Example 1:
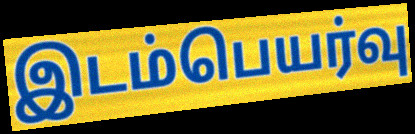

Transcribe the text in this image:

இடம்பெயர்வு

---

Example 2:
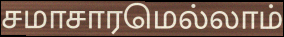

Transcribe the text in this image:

சமாசாரமெல்லாம்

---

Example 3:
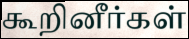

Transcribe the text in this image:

கூறினீர்கள்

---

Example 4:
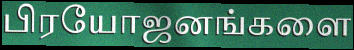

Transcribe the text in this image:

பிரயோஜனங்களை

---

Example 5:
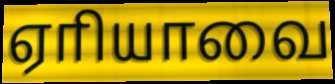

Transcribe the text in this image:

ஏரியாவை